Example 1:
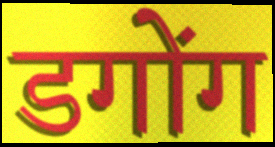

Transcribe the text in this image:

डगोंग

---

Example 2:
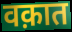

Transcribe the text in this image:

वक़ात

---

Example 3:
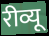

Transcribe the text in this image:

रीव्यू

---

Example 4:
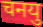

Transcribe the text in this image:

चनयु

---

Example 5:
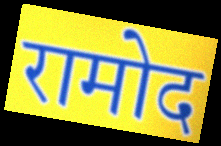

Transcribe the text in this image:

रामोद